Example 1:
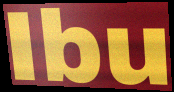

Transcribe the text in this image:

Ibu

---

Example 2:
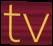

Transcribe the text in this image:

tv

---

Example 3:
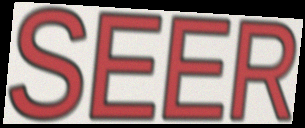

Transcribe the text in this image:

SEER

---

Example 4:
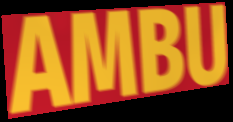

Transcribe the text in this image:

AMBU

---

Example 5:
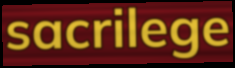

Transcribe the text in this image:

sacrilege